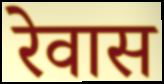
रेवास